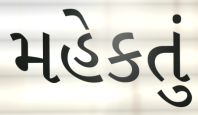
મહેકતું